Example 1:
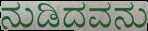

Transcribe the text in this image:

ನುಡಿದವನು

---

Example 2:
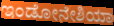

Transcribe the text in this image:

ಇಂಡೋನೇಶಿಯಾ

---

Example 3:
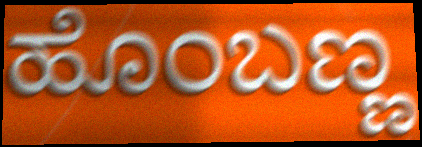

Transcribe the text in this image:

ಹೊಂಬಣ್ಣ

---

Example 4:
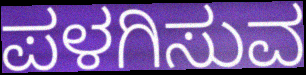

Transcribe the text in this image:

ಪಳಗಿಸುವ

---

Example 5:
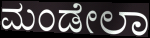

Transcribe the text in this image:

ಮಂಡೇಲಾ